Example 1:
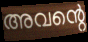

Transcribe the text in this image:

അവന്റെ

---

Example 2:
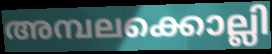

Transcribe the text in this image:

അമ്പലക്കൊല്ലി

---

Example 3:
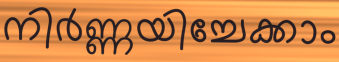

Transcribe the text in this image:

നിർണ്ണയിച്ചേക്കാം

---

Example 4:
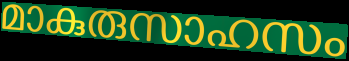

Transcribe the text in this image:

മാകുരുസാഹസം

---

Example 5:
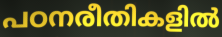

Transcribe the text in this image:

പഠനരീതികളിൽ